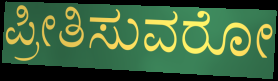
ಪ್ರೀತಿಸುವರೋ